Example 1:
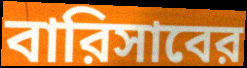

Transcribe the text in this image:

বারিসাবের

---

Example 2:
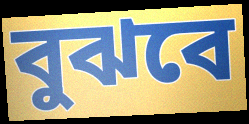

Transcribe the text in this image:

বুঝবে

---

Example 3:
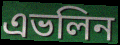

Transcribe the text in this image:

এভলিন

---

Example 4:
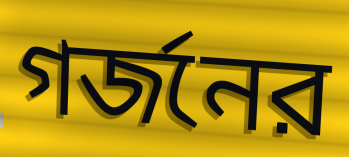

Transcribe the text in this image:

গর্জনের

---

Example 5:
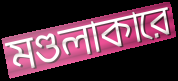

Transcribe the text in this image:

মণ্ডলাকারে